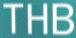
THB